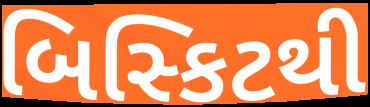
બિસ્કિટથી